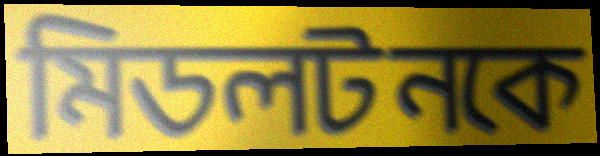
মিডলটনকে